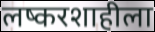
लष्करशाहीला